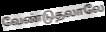
வேண்டுதலாலே